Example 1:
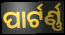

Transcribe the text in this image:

ପାର୍ଟର୍ଣ୍ଣ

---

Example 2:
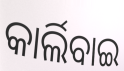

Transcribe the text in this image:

କାର୍ଲିବାଇ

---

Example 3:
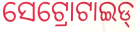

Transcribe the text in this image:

ସେଟ୍ରୋଟାଇଡ୍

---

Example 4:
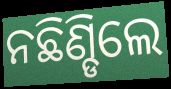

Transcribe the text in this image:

ନଛିଣ୍ଡିଲେ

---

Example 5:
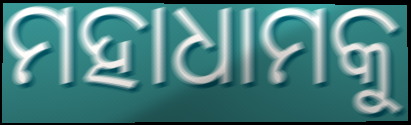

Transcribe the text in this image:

ମହାଧାମକୁ